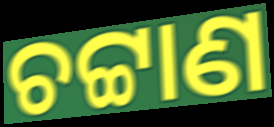
ଚଟ୍ଟାଣ